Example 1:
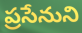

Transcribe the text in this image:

ప్రసేనుని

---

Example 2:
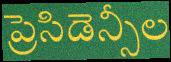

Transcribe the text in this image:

ప్రెసిడెన్సీల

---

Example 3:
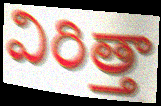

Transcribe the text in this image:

విరిత్తా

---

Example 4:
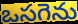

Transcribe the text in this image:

ఒసగెను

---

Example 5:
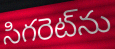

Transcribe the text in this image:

సిగరెట్‌ను